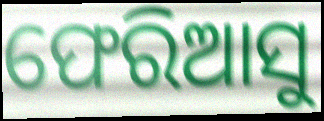
ଫେରିଆସୁ